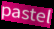
pastel